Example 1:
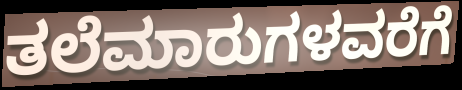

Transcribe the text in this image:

ತಲೆಮಾರುಗಳವರೆಗೆ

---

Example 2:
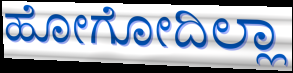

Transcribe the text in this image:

ಹೋಗೋದಿಲ್ಲಾ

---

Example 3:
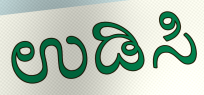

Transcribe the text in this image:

ಉಡಿಸಿ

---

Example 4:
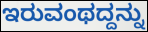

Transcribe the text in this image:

ಇರುವಂಥದ್ದನ್ನು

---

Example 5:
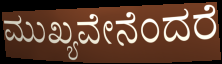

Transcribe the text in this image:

ಮುಖ್ಯವೇನೆಂದರೆ